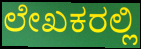
ಲೇಖಕರಲ್ಲಿ